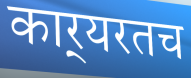
कार्यरतच